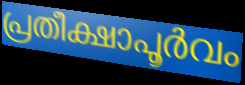
പ്രതീക്ഷാപൂർവം